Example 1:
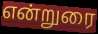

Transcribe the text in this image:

என்றுரை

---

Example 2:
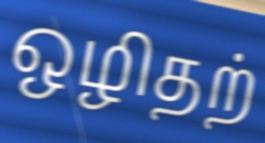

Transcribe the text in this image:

ஒழிதற்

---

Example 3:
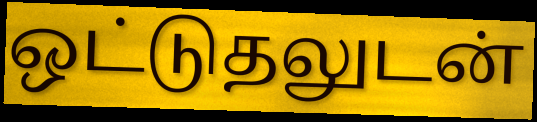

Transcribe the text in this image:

ஒட்டுதலுடன்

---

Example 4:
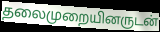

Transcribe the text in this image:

தலைமுறையினருடன்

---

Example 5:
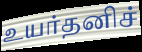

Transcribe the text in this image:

உயர்தனிச்